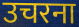
उचरना